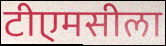
टीएमसीला